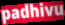
padhivu